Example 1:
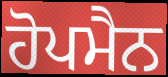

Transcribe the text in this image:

ਹੋਪਮੈਨ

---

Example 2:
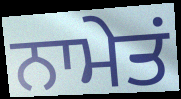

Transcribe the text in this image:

ਨਾਮੇਤਂ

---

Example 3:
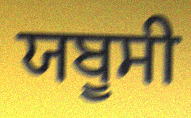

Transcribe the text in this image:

ਯਬੂਸੀ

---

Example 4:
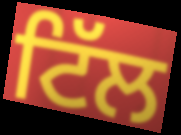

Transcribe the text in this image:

ਟਿੱਲ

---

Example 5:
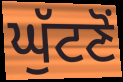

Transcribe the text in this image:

ਘੁੱਟਣੋਂ